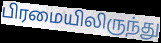
பிரமையிலிருந்து